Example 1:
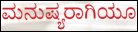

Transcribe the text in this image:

ಮನುಷ್ಯರಾಗಿಯೂ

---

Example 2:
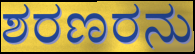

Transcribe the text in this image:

ಶರಣರನು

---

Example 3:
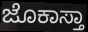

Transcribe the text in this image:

ಜೊಕಾಸ್ತಾ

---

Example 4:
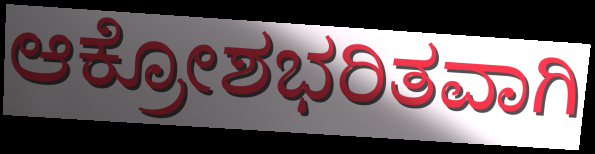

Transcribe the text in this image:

ಆಕ್ರೋಶಭರಿತವಾಗಿ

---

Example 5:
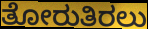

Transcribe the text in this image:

ತೋರುತಿರಲು